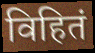
विहितं